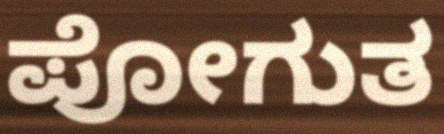
ಪೋಗುತ